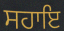
ਸਹਾਇ